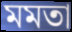
মমতা